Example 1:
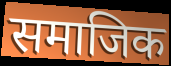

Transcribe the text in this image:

समाजिक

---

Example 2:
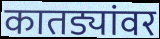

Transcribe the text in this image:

कातड्यांवर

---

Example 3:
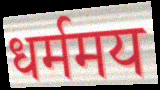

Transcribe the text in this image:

धर्ममय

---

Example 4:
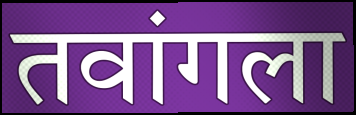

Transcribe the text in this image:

तवांगला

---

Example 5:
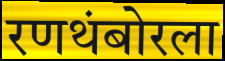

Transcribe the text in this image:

रणथंबोरला